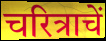
चरित्राचें